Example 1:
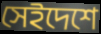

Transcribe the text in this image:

সেইদেশে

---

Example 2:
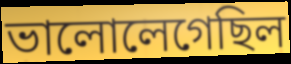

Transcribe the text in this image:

ভালোলেগেছিল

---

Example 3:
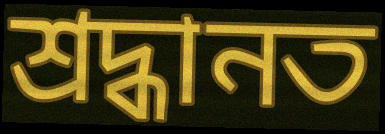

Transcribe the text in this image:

শ্রদ্ধানত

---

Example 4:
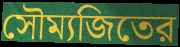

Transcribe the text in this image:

সৌম্যজিতের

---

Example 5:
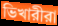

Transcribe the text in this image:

ভিখারীরা